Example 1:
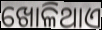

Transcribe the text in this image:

ଖୋଳିଥାଏ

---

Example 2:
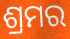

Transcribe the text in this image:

ଶ୍ରମର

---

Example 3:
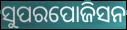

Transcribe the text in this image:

ସୁପରପୋଜିସନ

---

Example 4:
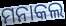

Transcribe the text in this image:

ମନାକଲ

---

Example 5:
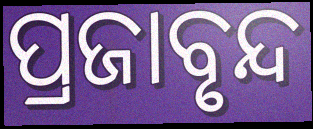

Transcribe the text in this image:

ପ୍ରଜାବୃନ୍ଦ